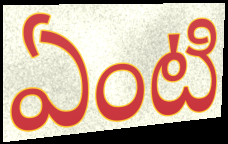
ఏంటి